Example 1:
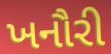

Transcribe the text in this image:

ખનૌરી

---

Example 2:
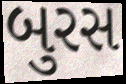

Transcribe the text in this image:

બુરસ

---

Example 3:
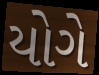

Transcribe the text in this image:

યોગે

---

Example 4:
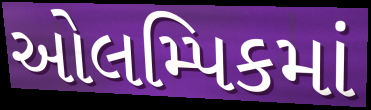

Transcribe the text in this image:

ઓલમ્પિકમાં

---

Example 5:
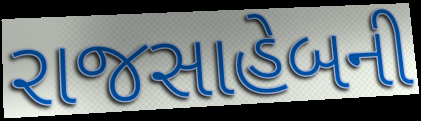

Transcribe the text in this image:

રાજસાહેબની